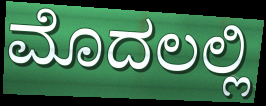
ಮೊದಲಲ್ಲಿ